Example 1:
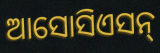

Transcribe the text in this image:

ଆସୋସିଏସନ୍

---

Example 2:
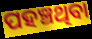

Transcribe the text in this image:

ପହଞ୍ଚଥିବା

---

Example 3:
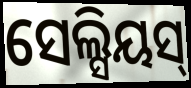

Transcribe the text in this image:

ସେଲ୍ସିୟସ୍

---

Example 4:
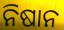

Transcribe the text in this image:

ନିଷାନ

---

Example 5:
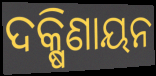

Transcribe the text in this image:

ଦକ୍ଷିଣାୟନ